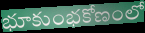
భూకుంభకోణంలో